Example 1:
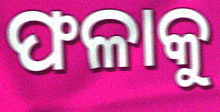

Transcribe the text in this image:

ଫଳାକୁ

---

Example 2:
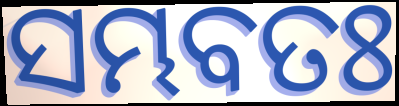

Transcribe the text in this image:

ସମ୍ଭବତଃ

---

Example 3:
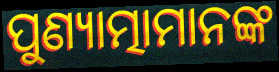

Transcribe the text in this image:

ପୁଣ୍ୟାତ୍ମାମାନଙ୍କ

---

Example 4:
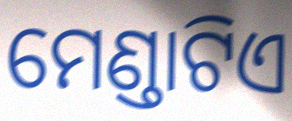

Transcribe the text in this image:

ମେଣ୍ଡାଟିଏ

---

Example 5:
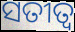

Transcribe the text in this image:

ସତୀତ୍ଵ